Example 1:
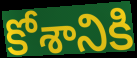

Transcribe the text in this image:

కోశానికి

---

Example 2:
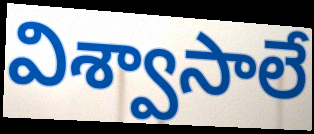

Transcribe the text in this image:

విశ్వాసాలే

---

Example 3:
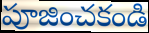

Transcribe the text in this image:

పూజించకండి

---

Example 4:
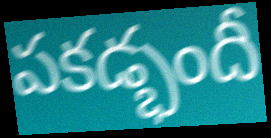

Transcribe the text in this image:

పకడ్భందీ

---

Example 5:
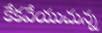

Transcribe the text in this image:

కేకవేయుచున్న